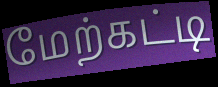
மேற்கட்டி